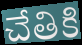
చేతికి